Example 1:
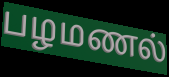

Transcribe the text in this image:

பழமணல்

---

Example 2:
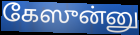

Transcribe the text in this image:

கேஸுன்னு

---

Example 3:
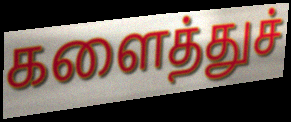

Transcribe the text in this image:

களைத்துச்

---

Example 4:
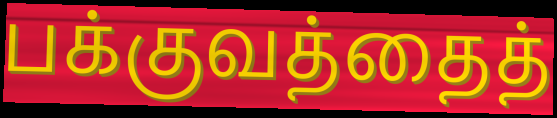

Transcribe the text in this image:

பக்குவத்தைத்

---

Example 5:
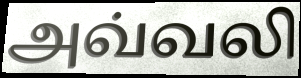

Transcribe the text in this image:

அவ்வலி